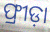
ଫ୍ରୀଡ଼ା